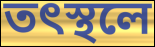
তৎস্থলে